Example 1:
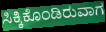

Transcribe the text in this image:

ಸಿಕ್ಕಿಕೊಂಡಿರುವಾಗ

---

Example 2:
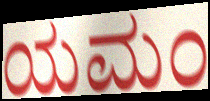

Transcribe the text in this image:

ಯಮಂ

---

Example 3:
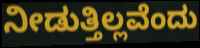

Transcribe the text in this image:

ನೀಡುತ್ತಿಲ್ಲವೆಂದು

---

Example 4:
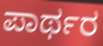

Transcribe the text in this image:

ಪಾರ್ಥರ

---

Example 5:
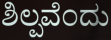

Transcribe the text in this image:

ಶಿಲ್ಪವೆಂದು